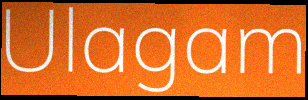
Ulagam